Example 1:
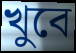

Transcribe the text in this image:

খুবে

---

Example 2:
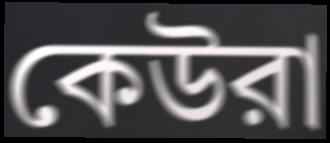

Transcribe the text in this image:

কেউরা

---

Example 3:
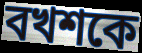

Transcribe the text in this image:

বখশকে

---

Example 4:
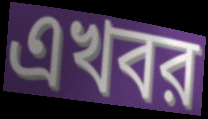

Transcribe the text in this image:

এখবর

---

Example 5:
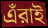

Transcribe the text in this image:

এঁরাই